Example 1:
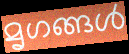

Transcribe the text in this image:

മൃഗങ്ങൾ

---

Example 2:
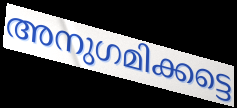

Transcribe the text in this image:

അനുഗമിക്കട്ടെ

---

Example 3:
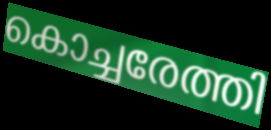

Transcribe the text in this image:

കൊച്ചരേത്തി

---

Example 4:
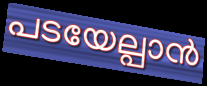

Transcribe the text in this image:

പടയേല്പാൻ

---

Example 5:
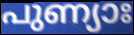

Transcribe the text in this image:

പുണ്യാഃ